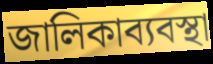
জালিকাব্যবস্থা